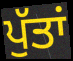
ਪੁੱਤਾਂ